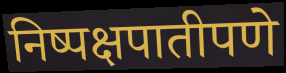
निष्पक्षपातीपणे